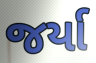
જર્યા